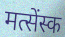
मत्सेंस्क